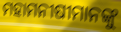
ମହାମନୀଷୀମାନଙ୍କୁ